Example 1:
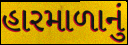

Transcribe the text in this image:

હારમાળાનું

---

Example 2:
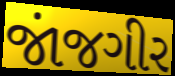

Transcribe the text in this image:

જાંજગીર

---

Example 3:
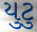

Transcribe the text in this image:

યુટુ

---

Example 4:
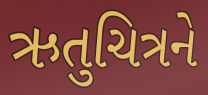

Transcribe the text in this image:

ઋતુચિત્રને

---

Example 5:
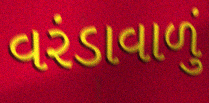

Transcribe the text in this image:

વરંડાવાળું